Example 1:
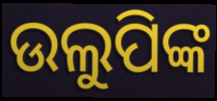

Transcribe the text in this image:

ଉଲୁପିଙ୍କ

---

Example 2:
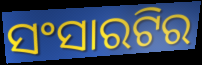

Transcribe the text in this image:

ସଂସାରଟିର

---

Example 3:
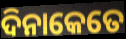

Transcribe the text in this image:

ଦିନାକେତେ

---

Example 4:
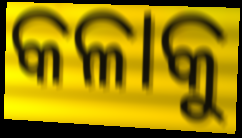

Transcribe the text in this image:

କଳାକୁ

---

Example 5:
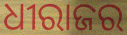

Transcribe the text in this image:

ଧୀରାଜର